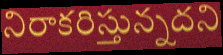
నిరాకరిస్తున్నదని